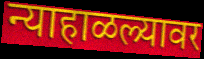
न्याहाळल्यावर